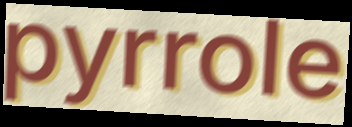
pyrrole